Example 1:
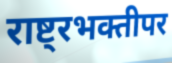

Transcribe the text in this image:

राष्ट्रभक्तीपर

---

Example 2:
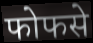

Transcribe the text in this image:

फोफसे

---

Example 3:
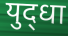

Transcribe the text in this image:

युद्धा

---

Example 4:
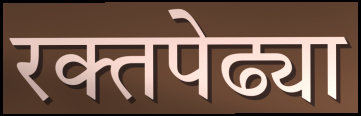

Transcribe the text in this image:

रक्तपेढ्या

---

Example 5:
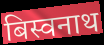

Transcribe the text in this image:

बिस्वनाथ